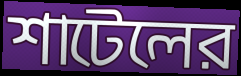
শাটেলের